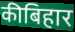
कीबिहार